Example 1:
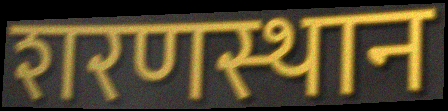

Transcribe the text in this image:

शरणस्थान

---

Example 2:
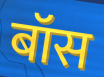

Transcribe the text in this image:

बॉस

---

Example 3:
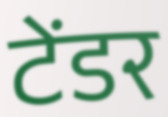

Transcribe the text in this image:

टेंडर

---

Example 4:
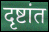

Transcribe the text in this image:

दृष्टांत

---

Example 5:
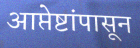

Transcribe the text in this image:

आप्तेष्टांपासून